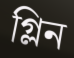
গ্লিন